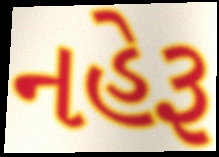
નહેરૂ